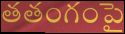
తతంగంపై